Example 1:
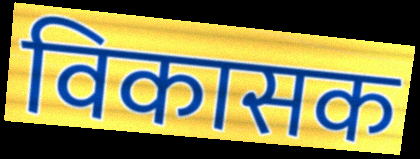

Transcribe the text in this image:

विकासक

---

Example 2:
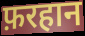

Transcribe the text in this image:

फ़रहान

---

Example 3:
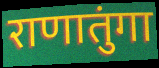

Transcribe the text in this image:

राणातुंगा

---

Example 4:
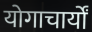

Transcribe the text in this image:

योगाचार्यों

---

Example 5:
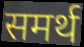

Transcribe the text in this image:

समर्थ